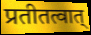
प्रतीतत्वात्